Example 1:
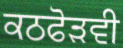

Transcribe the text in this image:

ਕਠਫੋੜਵੀ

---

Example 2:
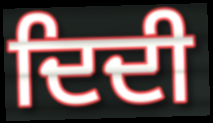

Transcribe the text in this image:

ਦਿਦੀ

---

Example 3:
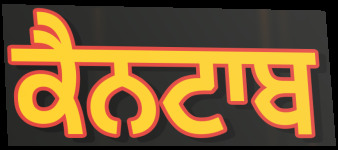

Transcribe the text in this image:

ਕੈਨਟਾਬ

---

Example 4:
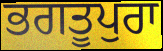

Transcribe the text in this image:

ਭਗਤੂਪੁਰਾ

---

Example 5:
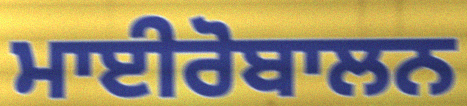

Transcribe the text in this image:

ਮਾਈਰੋਬਾਲਨ